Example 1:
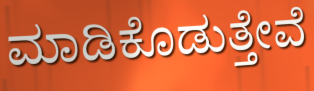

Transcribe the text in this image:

ಮಾಡಿಕೊಡುತ್ತೇವೆ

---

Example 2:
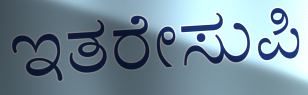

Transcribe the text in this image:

ಇತರೇಸುಪಿ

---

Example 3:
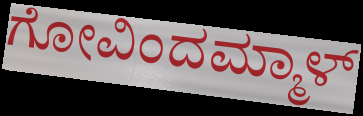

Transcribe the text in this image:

ಗೋವಿಂದಮ್ಮಾಳ್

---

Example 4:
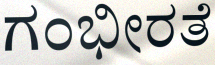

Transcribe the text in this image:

ಗಂಭೀರತೆ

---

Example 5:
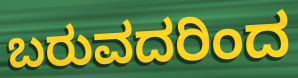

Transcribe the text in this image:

ಬರುವದರಿಂದ